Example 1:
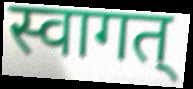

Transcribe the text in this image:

स्वागत्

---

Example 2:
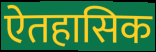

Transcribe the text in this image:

ऐतहासिक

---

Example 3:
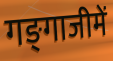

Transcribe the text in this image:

गङ्गाजीमें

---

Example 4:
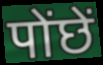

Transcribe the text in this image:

पोंछें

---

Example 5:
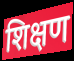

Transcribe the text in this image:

शिक्षण